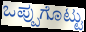
ಒಪ್ಪುಗೊಟ್ಟು